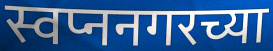
स्वप्ननगरच्या